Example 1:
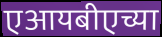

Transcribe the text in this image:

एआयबीएच्या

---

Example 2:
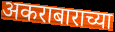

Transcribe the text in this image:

अकराबाराच्या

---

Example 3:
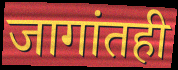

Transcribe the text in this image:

जागांतही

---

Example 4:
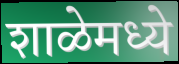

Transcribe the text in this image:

शाळेमध्ये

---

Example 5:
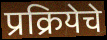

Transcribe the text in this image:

प्रक्रियेचे